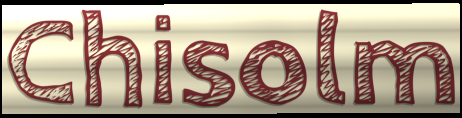
Chisolm